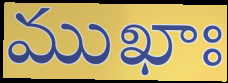
ముఖాః